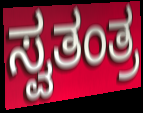
ಸ್ವತಂತ್ರ